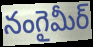
నంగైమీర్